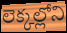
లెక్కల్లోని